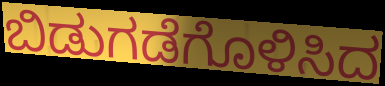
ಬಿಡುಗಡೆಗೊಳಿಸಿದ